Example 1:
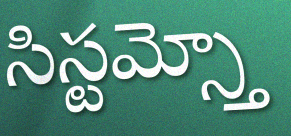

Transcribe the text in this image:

సిస్టమ్స్తో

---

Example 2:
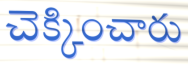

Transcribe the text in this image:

చెక్కించారు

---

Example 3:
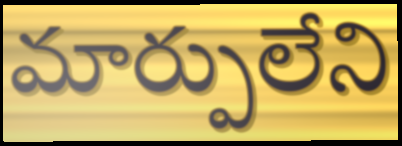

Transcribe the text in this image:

మార్పులేని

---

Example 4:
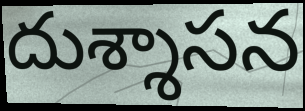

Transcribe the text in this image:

దుశ్శాసన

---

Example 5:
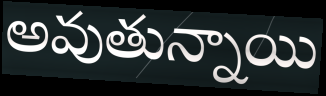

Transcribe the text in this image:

అవుతున్నాయి